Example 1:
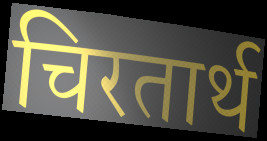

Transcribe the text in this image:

चिरतार्थ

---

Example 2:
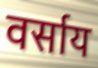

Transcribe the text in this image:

वर्साय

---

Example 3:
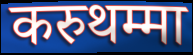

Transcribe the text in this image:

करुथम्मा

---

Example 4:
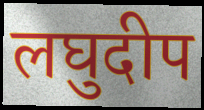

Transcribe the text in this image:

लघुदीप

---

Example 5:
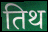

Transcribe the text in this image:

तिथ